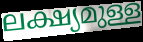
ലക്ഷ്യമുള്ള